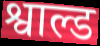
श्वाल्ड